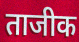
ताजीक